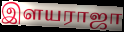
இளயராஜா